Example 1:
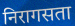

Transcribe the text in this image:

निरागसता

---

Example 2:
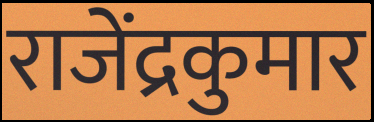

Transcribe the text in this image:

राजेंद्रकुमार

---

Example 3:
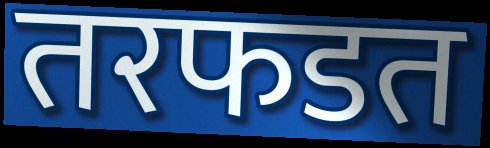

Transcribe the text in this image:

तरफडत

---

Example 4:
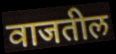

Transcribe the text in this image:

वाजतील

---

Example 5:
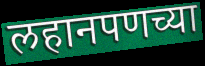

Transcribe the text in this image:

लहानपणच्या